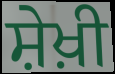
ਸ਼ੇਖ਼ੀ